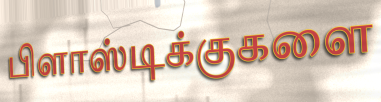
பிளாஸ்டிக்குகளை